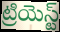
ట్రియెస్ట్